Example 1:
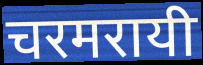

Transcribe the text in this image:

चरमरायी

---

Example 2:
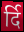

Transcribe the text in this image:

र्दि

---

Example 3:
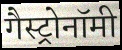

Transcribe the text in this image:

गैस्ट्रोनॉमी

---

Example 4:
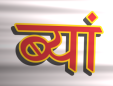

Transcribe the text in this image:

ब्यां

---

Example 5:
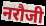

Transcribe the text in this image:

नरौजी